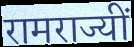
रामराज्यीं